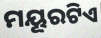
ମୟୂରଟିଏ